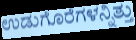
ಉಡುಗೊರೆಗಳನ್ನಿತ್ತು